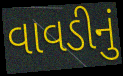
વાવડીનું